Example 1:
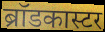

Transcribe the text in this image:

ब्रॉडकास्टर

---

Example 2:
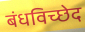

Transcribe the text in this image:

बंधविच्छेद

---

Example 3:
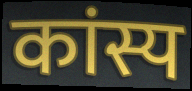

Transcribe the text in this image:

कांस्‍य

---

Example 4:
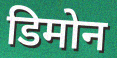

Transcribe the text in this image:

डिमोन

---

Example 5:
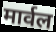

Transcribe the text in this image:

मार्वल